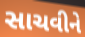
સાચવીને